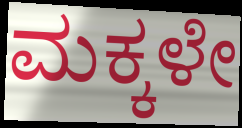
ಮಕ್ಕಳೇ